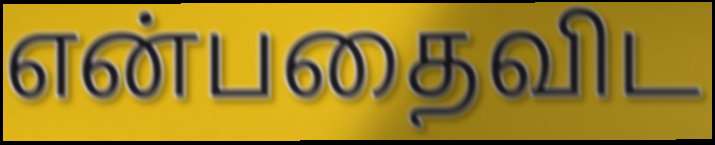
என்பதைவிட